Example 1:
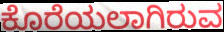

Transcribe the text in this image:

ಕೊರೆಯಲಾಗಿರುವ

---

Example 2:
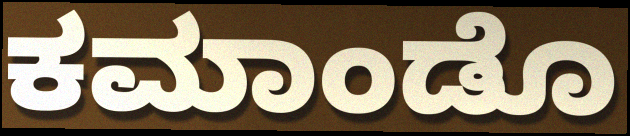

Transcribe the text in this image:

ಕಮಾಂಡೊ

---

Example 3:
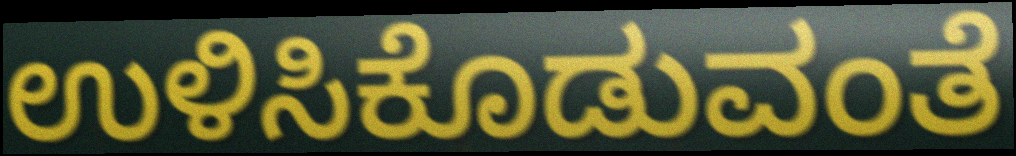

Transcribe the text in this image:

ಉಳಿಸಿಕೊಡುವಂತೆ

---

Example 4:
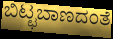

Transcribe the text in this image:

ಬಿಟ್ಟಬಾಣದಂತೆ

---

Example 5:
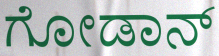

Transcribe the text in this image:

ಗೋಡಾನ್